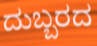
ದುಬ್ಬರದ